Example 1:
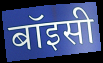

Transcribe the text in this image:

बॉइसी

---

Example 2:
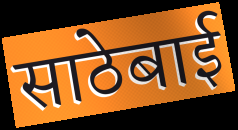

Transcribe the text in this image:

साठेबाई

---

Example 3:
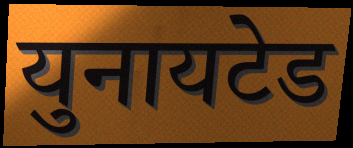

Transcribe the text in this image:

युनायटेड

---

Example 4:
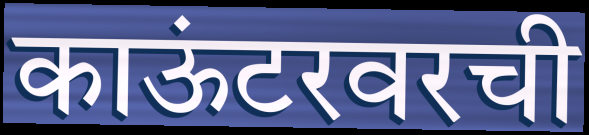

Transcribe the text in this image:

काऊंटरवरची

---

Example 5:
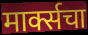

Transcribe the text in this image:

मार्क्सचा